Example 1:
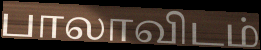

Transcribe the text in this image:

பாலாவிடம்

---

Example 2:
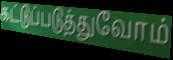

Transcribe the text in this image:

கட்டுப்படுத்துவோம்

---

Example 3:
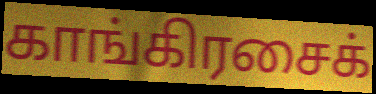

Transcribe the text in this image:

காங்கிரசைக்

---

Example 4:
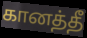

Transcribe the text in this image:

கானத்தீ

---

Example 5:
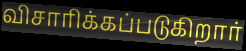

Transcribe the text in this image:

விசாரிக்கப்படுகிறார்